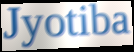
Jyotiba